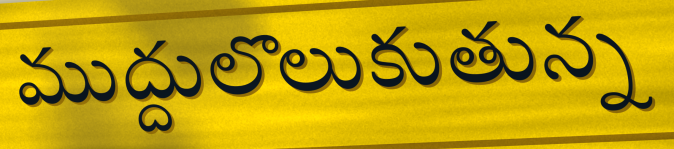
ముద్దులొలుకుతున్న